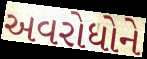
અવરોધોને